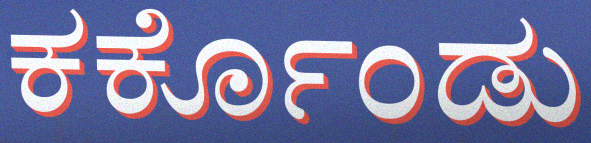
ಕರ್ಕೊಂಡು